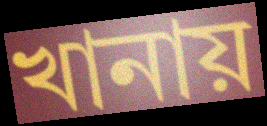
খানায়